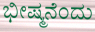
ಭೀಷ್ಮನೆಂದು